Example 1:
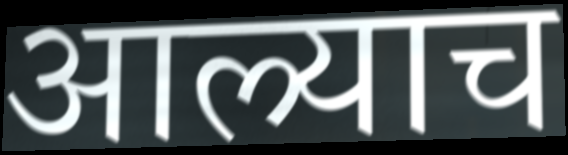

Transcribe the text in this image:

आल्याच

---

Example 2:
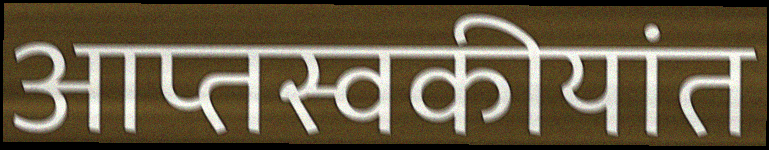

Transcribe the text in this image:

आप्तस्वकीयांत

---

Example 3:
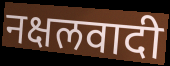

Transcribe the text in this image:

नक्षलवादी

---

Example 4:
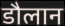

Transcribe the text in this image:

डौलान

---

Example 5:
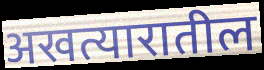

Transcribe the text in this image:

अखत्यारातील